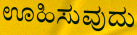
ಊಹಿಸುವುದು